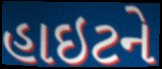
હાઇટને